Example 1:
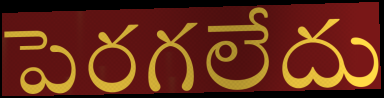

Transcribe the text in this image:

పెరగలేదు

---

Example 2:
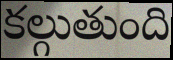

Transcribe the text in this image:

కల్గుతుంది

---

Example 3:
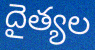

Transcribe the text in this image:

దైత్యల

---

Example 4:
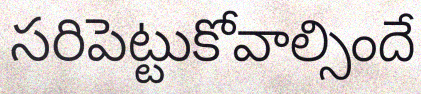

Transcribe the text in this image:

సరిపెట్టుకోవాల్సిందే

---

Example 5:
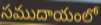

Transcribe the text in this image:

సముదాయంలో